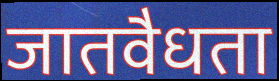
जातवैधता